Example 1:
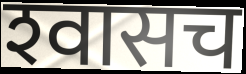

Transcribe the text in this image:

श्‍वासच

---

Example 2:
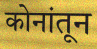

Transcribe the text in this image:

कोनांतून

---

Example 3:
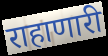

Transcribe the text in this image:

राहाणारी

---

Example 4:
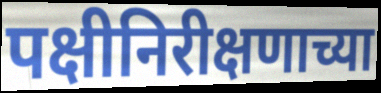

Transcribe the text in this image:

पक्षीनिरीक्षणाच्या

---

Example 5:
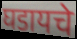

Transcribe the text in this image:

घडायचे